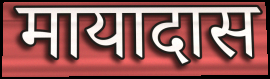
मायादास